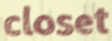
closet